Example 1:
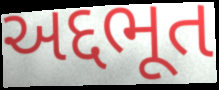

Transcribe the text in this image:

અદ્દભૂત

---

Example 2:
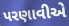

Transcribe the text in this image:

પરણાવીએ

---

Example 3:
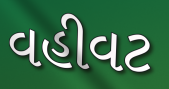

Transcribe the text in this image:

વહીવટ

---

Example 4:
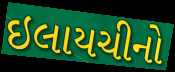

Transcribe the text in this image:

ઇલાયચીનો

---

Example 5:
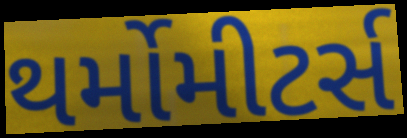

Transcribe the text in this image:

થર્મોમીટર્સ